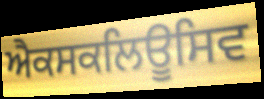
ਐਕਸਕਲਿਊਸਿਵ